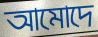
আমোদে